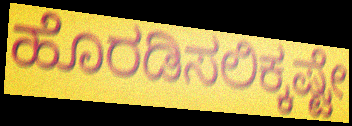
ಹೊರಡಿಸಲಿಕ್ಕಷ್ಟೇ